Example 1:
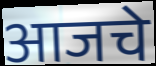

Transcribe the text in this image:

आजचे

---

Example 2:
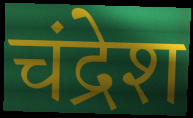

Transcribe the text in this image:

चंद्रेश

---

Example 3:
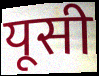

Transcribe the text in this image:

यूसी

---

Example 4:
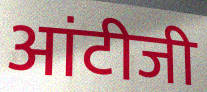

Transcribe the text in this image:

आंटीजी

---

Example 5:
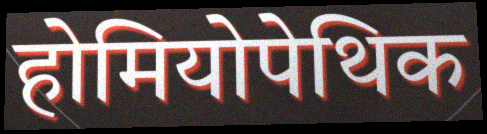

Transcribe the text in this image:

होमियोपेथिक